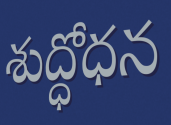
శుద్ధోధన